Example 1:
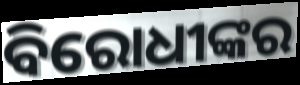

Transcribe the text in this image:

ବିରୋଧୀଙ୍କର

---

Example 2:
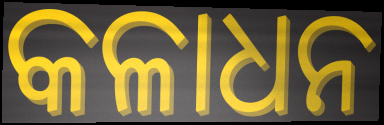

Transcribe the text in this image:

କଳାଧନ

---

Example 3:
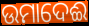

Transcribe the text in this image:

ଉମାଦେଈ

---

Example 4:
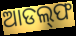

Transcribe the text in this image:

ଆଡଲ୍‌ଫ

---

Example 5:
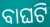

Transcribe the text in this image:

ବାଘଟି